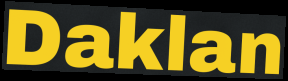
Daklan